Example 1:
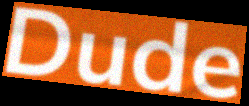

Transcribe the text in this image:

Dude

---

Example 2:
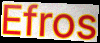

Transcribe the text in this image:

Efros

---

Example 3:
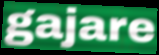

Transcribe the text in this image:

gajare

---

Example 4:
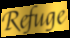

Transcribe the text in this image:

Refuge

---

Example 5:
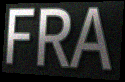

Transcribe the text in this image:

FRA